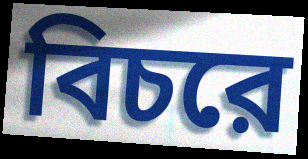
বিচরে